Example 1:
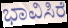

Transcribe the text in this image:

ಭಾವಿಸಿರೆ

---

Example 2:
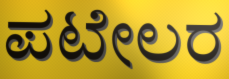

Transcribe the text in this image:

ಪಟೇಲರ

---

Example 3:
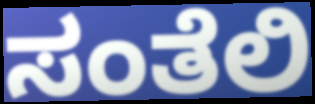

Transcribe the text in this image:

ಸಂತೆಲಿ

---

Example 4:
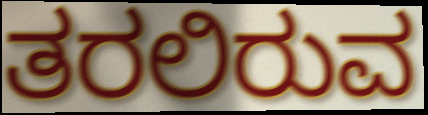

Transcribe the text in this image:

ತರಲಿರುವ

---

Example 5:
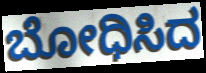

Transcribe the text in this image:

ಬೋಧಿಸಿದ